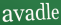
avadle